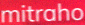
mitraho